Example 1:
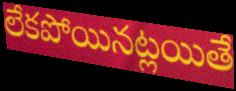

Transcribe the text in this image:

లేకపోయినట్లయితే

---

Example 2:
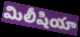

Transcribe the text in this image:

మిలీషియా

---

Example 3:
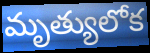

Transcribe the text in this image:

మృత్యులోక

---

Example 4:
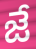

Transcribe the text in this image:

జే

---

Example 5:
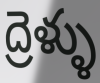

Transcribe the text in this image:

ద్రెళ్ళు